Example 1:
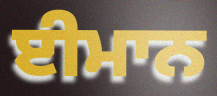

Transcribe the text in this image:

ਈਮਾਨ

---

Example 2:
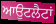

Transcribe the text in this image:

ਆਉਟਲੈਟਾਂ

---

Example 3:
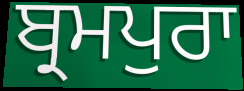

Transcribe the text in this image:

ਬ੍ਰਮਪੁਰਾ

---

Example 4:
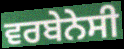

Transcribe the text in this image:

ਵਰਬੇਨੇਸੀ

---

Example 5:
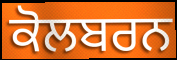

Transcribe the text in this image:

ਕੋਲਬਰਨ